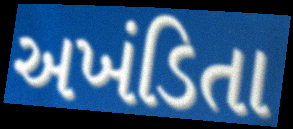
અખંડિતા